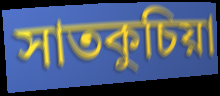
সাতকুচিয়া